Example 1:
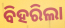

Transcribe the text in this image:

ବିହରିଲା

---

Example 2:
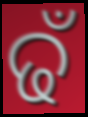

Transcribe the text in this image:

ଢଁ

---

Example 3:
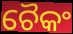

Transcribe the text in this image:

ଚୈକଂ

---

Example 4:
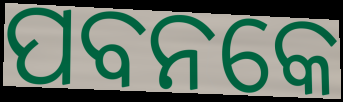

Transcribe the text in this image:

ପବନକେ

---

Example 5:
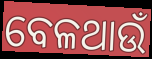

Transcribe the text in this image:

ବେଳଥାଉଁ